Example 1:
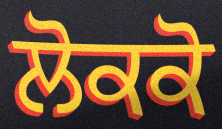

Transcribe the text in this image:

ਲੋਕਕੋ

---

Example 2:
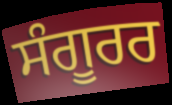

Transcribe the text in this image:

ਸੰਗੂਰਰ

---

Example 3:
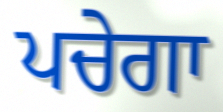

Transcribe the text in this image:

ਪਚੇਗਾ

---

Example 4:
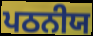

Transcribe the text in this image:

ਪਠਨੀਯ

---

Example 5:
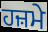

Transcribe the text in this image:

ਹਜ਼ਮੇ